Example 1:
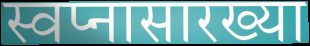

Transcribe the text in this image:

स्वप्नासारख्या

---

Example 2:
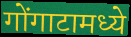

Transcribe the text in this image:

गोंगाटामध्ये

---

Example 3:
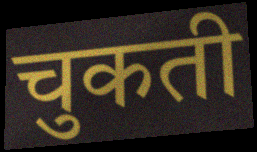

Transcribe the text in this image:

चुकती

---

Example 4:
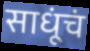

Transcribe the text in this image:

साधूंचं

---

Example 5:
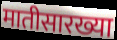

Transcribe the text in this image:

मातीसारख्या